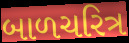
બાળચરિત્ર